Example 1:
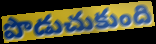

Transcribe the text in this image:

పొడుచుకుంది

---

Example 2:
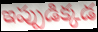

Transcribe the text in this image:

ఇప్పుడిక్కడ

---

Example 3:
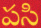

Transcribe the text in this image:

పసి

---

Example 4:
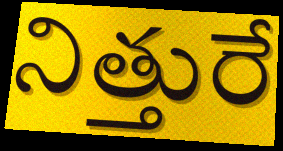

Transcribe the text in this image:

నిత్తురే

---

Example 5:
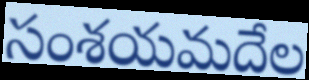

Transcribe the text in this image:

సంశయమదేల